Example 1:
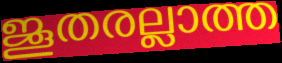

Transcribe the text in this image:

ജൂതരല്ലാത്ത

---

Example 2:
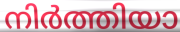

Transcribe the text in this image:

നിർത്തിയാ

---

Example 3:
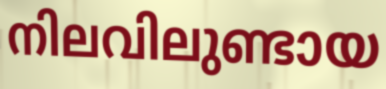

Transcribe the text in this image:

നിലവിലുണ്ടായ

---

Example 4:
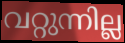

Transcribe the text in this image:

വറ്റുന്നില്ല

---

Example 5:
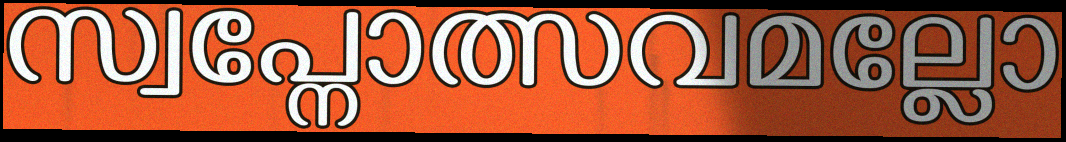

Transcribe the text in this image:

സ്വപ്നോത്സവമല്ലോ